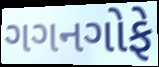
ગગનગોફે